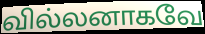
வில்லனாகவே